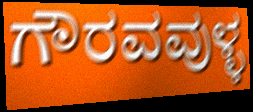
ಗೌರವವುಳ್ಳ